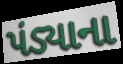
પંડ્યાના